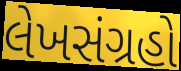
લેખસંગ્રહો